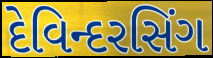
દેવિન્દરસિંગ